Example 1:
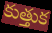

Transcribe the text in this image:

కుత్తుక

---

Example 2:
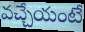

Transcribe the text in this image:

వచ్చేయంటే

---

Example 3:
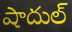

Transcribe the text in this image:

షాదుల్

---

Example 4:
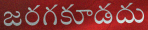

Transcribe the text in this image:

జరగకూడదు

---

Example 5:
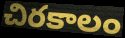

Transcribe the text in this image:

చిరకాలం